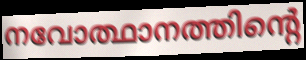
നവോത്ഥാനത്തിന്റെ